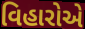
વિહારોએ